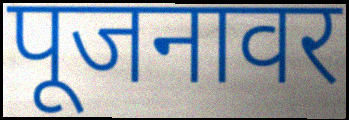
पूजनावर